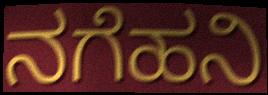
ನಗೆಹನಿ